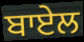
ਬਾਏਲ